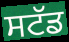
ਸਟੱਡ